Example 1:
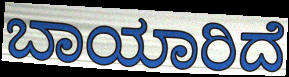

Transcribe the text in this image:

ಬಾಯಾರಿದೆ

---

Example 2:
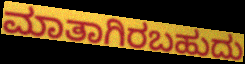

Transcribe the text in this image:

ಮಾತಾಗಿರಬಹುದು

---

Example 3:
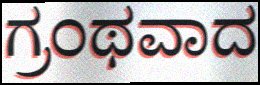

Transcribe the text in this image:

ಗ್ರಂಥವಾದ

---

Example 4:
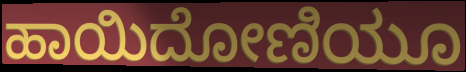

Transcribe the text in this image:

ಹಾಯಿದೋಣಿಯೂ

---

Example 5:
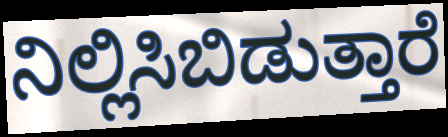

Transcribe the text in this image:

ನಿಲ್ಲಿಸಿಬಿಡುತ್ತಾರೆ